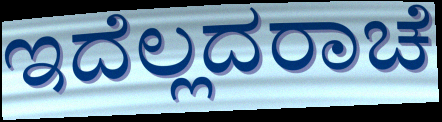
ಇದೆಲ್ಲದರಾಚೆ